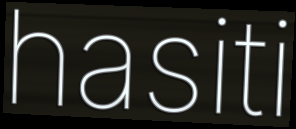
hasiti